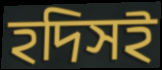
হদিসই